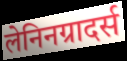
लेनिनग्रादर्स